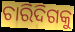
ଚାରିଦିଗକୁ